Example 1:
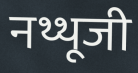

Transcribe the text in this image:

नथ्थूजी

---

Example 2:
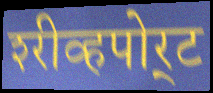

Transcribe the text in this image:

श्रीव्हपोर्ट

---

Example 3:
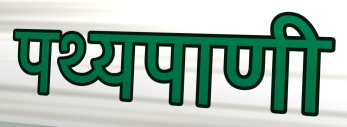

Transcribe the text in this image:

पथ्यपाणी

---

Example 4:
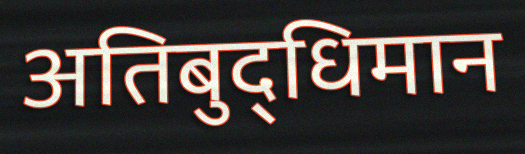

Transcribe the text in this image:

अतिबुद्धिमान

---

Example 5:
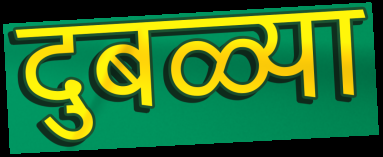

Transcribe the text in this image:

दुबळ्या